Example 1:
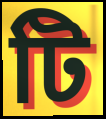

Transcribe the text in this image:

টি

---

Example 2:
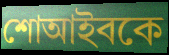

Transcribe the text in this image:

শোআইবকে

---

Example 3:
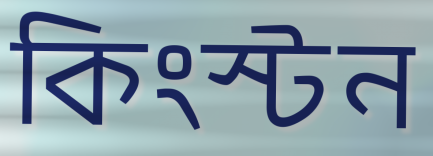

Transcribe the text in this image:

কিংস্টন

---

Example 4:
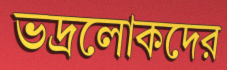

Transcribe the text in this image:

ভদ্রলোকদের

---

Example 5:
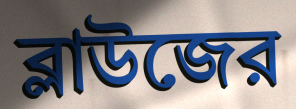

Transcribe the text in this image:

ব্লাউজের